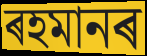
ৰহমানৰ